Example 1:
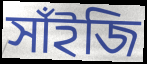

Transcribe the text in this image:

সাঁইজি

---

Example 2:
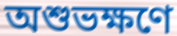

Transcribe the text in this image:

অশুভক্ষণে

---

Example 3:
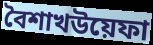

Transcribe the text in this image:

বৈশাখউয়েফা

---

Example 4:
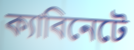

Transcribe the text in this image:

ক্যাবিনেটে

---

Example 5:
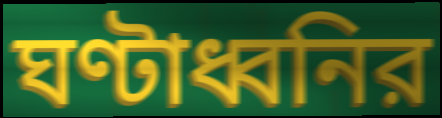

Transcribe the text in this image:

ঘণ্টাধ্বনির